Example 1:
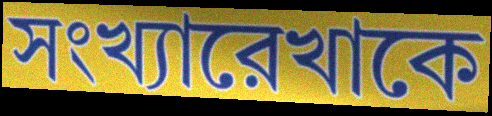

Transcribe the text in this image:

সংখ্যারেখাকে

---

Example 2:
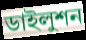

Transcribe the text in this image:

ডাইলুশন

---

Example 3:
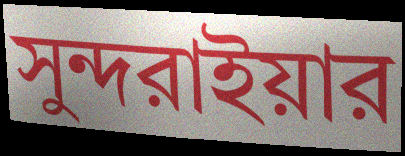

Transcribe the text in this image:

সুন্দরাইয়ার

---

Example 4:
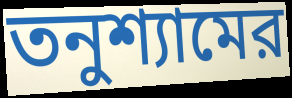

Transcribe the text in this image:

তনুশ্যামের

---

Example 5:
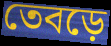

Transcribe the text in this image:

তেবড়ে